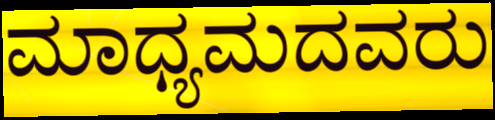
ಮಾಧ್ಯಮದವರು